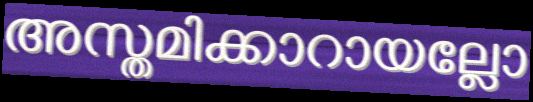
അസ്തമിക്കാറായല്ലോ